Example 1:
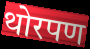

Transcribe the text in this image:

थोरपण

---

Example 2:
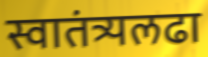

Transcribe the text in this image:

स्वातंत्र्यलढा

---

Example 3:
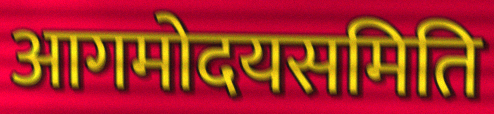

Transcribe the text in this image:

आगमोदयसमिति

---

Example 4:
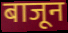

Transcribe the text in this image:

बाजून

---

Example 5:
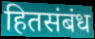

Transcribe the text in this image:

हितसंबंध